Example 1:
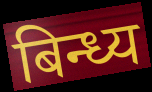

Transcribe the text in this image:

बिन्ध्य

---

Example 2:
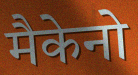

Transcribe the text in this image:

मैकेनो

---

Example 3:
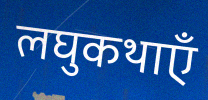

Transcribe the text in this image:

लघुकथाएँ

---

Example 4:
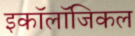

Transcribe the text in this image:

इकॉलॉजिकल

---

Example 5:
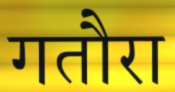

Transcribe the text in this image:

गतौरा